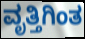
ವೃತ್ತಿಗಿಂತ